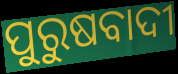
ପୁରୁଷବାଦୀ